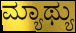
ಮ್ಯಾಥ್ಯು